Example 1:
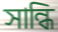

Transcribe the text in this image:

সান্ধি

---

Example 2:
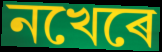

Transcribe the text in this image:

নখেৰে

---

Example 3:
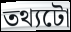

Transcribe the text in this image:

তথ্যটো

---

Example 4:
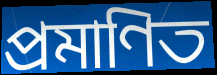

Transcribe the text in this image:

প্ৰমাণিত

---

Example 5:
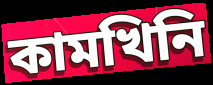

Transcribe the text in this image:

কামখিনি